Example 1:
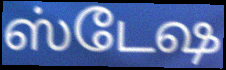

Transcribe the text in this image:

ஸ்டேஷ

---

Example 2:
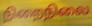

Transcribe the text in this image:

நிறைநிலை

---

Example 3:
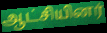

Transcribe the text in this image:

ஆட்சியினர்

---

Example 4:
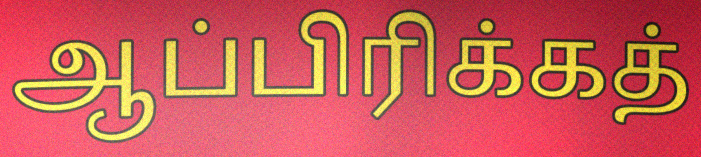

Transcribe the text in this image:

ஆப்பிரிக்கத்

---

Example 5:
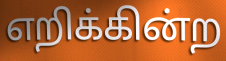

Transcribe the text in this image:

எறிக்கின்ற